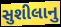
સુશીલાનુ